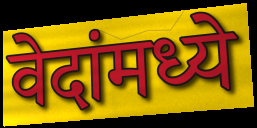
वेदांमध्ये